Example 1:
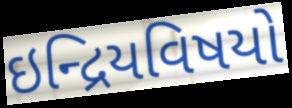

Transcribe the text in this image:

ઇન્દ્રિયવિષયો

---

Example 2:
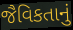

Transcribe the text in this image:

જૈવિકતાનું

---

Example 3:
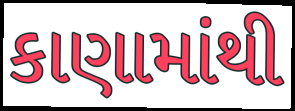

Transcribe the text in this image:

કાણામાંથી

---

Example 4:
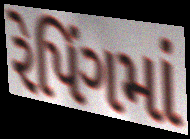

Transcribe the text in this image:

રેપિંગમાં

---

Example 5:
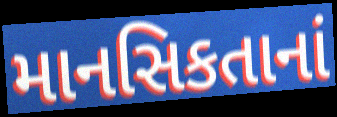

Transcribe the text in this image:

માનસિકતાનાં